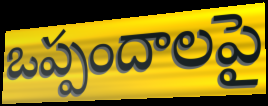
ఒప్పందాలపై